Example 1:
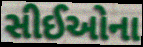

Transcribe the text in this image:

સીઈઓના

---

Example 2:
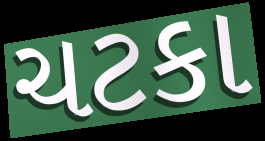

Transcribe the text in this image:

ચટકા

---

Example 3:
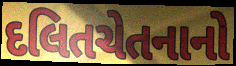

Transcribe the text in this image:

દલિતચેતનાનો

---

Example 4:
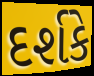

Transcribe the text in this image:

દર્શકે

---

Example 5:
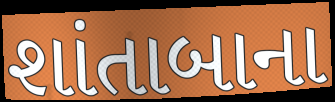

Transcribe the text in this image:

શાંતાબાના